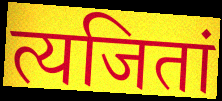
त्यजितां